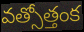
వత్సోత్తంక